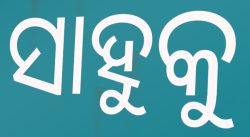
ସାହୁକୁ